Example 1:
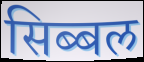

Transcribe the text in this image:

सिब्बल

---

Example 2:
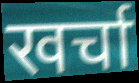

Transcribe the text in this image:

खर्चा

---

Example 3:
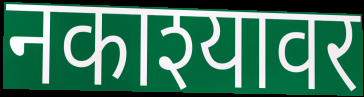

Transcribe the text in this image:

नकाश्यावर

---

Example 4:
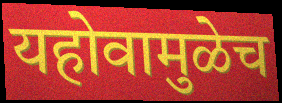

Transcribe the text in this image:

यहोवामुळेच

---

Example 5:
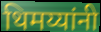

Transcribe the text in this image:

थिमय्यांनी